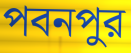
পবনপুর